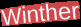
Winther